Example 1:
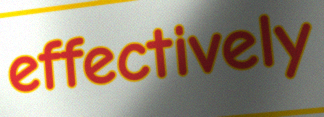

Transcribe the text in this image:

effectively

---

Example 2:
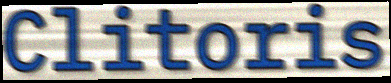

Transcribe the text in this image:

Clitoris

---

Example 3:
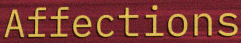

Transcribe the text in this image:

Affections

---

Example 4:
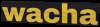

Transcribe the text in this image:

wacha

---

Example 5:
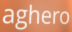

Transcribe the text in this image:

aghero